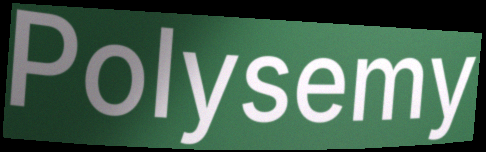
Polysemy